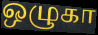
ஒழுகா